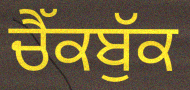
ਚੈੱਕਬੁੱਕ